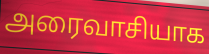
அரைவாசியாக